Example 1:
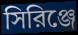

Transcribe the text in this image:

সিরিঞ্জে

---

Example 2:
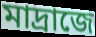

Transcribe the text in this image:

মাদ্রাজে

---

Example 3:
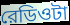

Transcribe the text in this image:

রেডিওটা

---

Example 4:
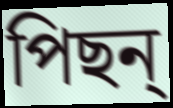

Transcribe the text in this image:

পিছন্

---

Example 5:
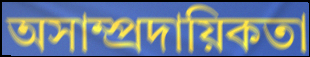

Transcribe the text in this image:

অসাম্প্রদায়িকতা